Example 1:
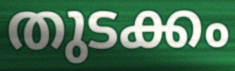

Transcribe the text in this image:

തുടക്കം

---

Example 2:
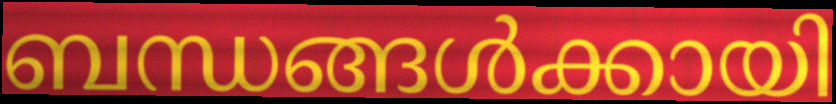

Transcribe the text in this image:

ബന്ധങ്ങൾക്കായി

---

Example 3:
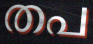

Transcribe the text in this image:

തപ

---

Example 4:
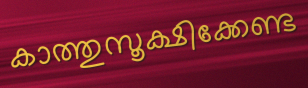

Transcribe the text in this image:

കാത്തുസൂക്ഷിക്കേണ്ട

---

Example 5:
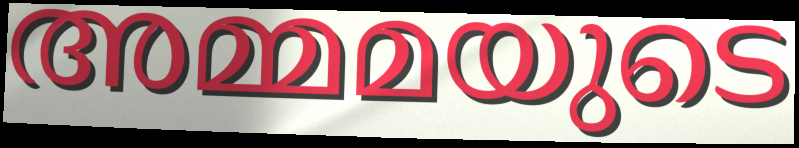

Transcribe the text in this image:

അമ്മമയുടെ